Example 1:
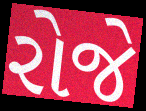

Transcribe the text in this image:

રોજે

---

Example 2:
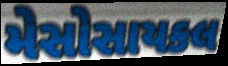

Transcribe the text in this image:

મેસોસાયકલ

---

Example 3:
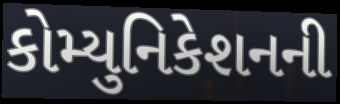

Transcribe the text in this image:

કોમ્યુનિકેશનની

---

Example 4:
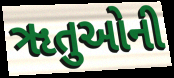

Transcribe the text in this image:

ૠતુઓની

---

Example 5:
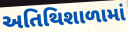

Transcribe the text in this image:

અતિથિશાળામાં